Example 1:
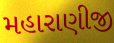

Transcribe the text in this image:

મહારાણીજી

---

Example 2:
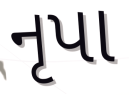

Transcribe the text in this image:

નૃપા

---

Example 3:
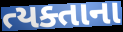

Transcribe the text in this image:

ત્યક્તાના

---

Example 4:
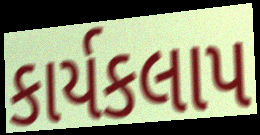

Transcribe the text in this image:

કાર્યકલાપ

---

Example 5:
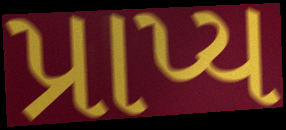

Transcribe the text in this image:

પ્રાપ્ય